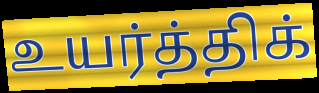
உயர்த்திக்